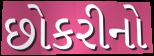
છોકરીનો